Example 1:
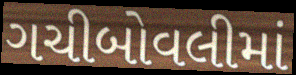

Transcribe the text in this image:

ગચીબોવલીમાં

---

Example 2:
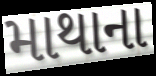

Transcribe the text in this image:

માથાના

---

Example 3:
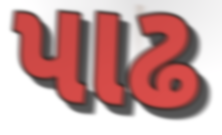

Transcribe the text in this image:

પાઢ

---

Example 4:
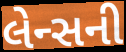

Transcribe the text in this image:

લેન્સની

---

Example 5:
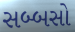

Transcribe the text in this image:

સબ્બસો